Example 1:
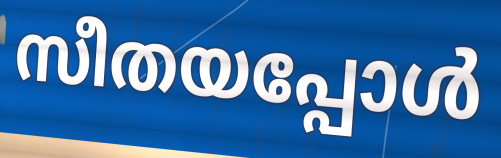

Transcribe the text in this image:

സീതയപ്പോൾ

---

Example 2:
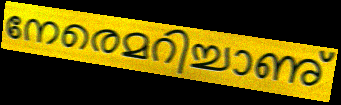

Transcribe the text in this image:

നേരെമറിച്ചാണു്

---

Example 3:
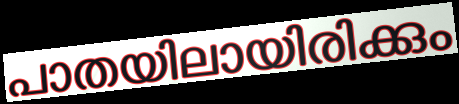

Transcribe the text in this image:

പാതയിലായിരിക്കും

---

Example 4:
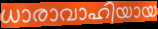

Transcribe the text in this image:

ധാരാവാഹിയായ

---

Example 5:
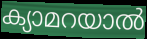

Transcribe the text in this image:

ക്യാമറയാൽ